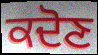
ਕਦੋਣ